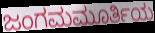
ಜಂಗಮಮೂರ್ತಿಯ